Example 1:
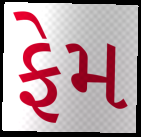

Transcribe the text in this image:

ફેમ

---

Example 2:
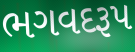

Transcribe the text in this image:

ભગવદરૂપ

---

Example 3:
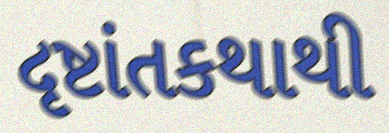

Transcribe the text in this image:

દૃષ્ટાંતકથાથી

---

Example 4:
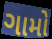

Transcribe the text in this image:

ગામો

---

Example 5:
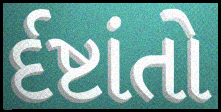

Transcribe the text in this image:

ર્દષ્ટાંતો